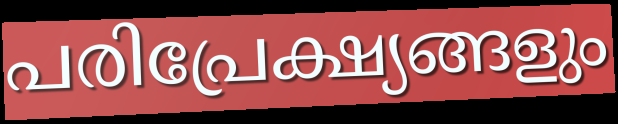
പരിപ്രേക്ഷ്യങ്ങളും